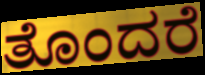
ತೊಂದರೆ